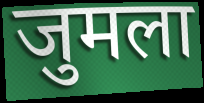
जुमला